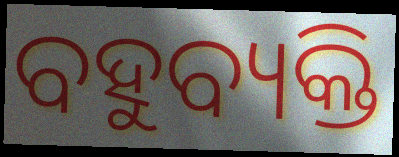
ବହୁବ୍ୟକ୍ତି